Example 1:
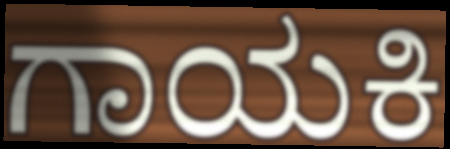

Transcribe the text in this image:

ಗಾಯಕಿ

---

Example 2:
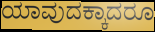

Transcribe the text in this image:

ಯಾವುದಕ್ಕಾದರೂ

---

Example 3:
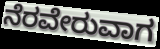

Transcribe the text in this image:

ನೆರವೇರುವಾಗ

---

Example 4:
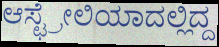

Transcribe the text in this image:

ಆಸ್ಟ್ರೇಲಿಯಾದಲ್ಲಿದ್ದ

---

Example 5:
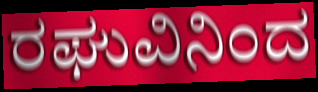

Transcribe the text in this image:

ರಘುವಿನಿಂದ